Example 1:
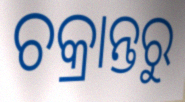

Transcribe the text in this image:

ଚକ୍ରାନ୍ତରୁ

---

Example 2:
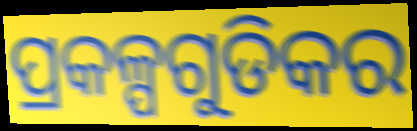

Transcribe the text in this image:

ପ୍ରକଳ୍ପଗୁଡିକର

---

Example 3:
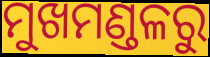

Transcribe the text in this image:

ମୁଖମଣ୍ଡଳରୁ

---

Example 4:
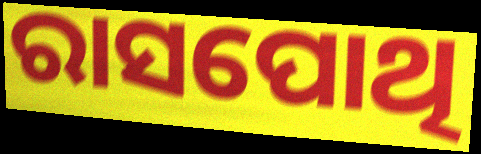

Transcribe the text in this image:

ରାସପୋଥି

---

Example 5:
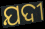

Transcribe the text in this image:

ଯଦୀ